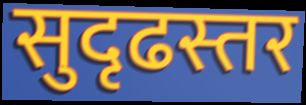
सुदृढस्तर